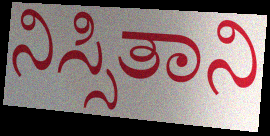
ನಿಸ್ಸಿತಾನಿ